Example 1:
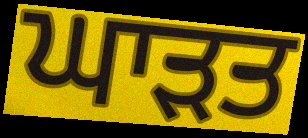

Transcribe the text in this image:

ਘਾੜਤ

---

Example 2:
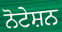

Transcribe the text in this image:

ਨੋਟੇਸ਼ਨ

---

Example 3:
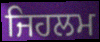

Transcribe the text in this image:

ਜਿਹਲਮ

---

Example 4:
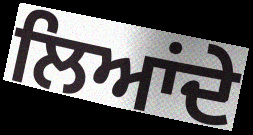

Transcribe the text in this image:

ਲਿਆਂਦੇ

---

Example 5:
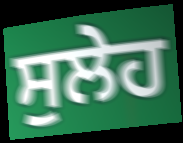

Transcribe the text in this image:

ਸੁਲੇਹ